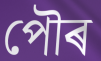
পৌৰ